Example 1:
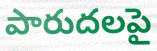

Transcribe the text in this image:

పారుదలపై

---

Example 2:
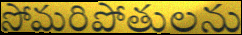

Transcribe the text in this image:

సోమరిపోతులను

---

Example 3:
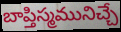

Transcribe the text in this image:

బాప్తిస్మమునిచ్చే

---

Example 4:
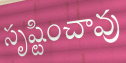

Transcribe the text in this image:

సృష్టించావు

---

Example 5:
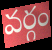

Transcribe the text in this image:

వర్గం